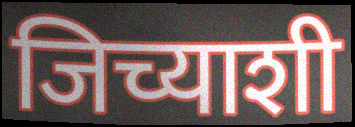
जिच्याशी